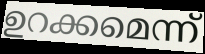
ഉറക്കമെന്ന്